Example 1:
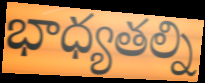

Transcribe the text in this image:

భాధ్యతల్ని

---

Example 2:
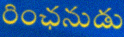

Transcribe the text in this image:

రింఛనుడు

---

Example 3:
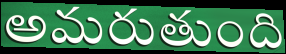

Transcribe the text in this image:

అమరుతుంది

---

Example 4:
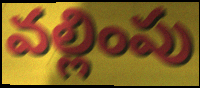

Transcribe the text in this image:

వల్లింపు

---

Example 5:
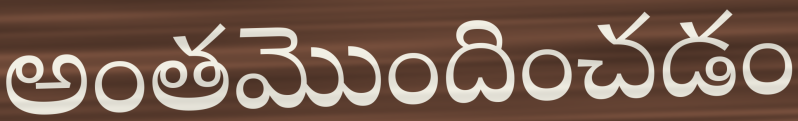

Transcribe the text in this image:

అంతమొందించడం